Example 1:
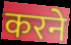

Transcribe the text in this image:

करने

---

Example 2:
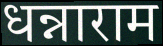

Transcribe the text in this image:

धन्नाराम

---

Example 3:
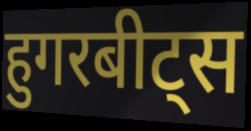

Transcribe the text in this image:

हुगरबीट्स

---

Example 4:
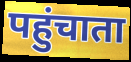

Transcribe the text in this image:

पहुंचाता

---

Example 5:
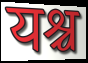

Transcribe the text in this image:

यश्च